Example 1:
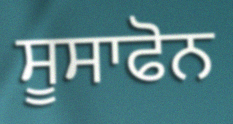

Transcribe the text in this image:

ਸੂਸਾਫੋਨ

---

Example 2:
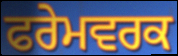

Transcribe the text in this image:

ਫਰੇਮਵਰਕ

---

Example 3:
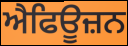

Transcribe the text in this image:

ਐਫਿਊਜ਼ਨ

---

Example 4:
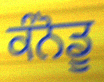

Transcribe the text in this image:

ਕੰਨੋਡੂ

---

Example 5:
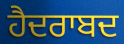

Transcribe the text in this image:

ਹੈਦਰਾਬਦ